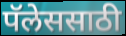
पॅलेससाठी